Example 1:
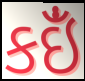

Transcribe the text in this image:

કઇઁં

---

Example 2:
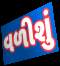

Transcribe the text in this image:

વળીશું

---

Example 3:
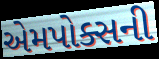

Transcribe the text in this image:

એમપોક્સની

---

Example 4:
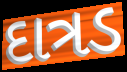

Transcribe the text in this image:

દાત્રડ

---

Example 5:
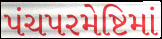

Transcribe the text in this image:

પંચપરમેષ્ટિમાં